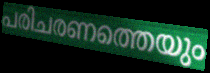
പരിചരണത്തെയും